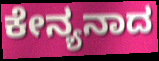
ಕೇನ್ಯನಾದ